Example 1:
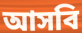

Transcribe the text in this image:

আসবি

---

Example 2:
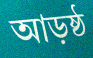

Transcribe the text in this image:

আড়ষ্ঠ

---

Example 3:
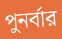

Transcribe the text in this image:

পুনর্বার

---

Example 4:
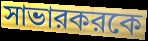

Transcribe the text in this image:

সাভারকরকে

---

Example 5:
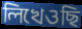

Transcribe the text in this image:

লিখেওছি